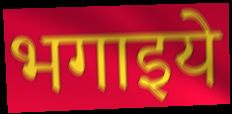
भगाइये